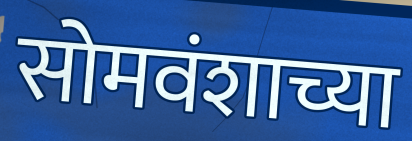
सोमवंशाच्या